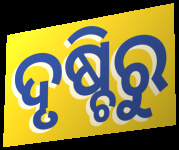
ଦୃଷ୍ଚିରୁ